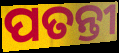
ପତନ୍ତୀ